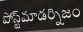
పోస్ట్‌మాడర్నిజం